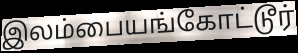
இலம்பையங்கோட்டூர்